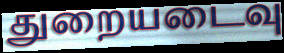
துறையடைவு